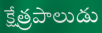
క్షేత్రపాలుడు